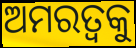
ଅମରତ୍ୱକୁ